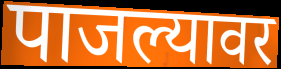
पाजल्यावर